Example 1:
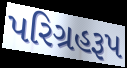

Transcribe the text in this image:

પરિગ્રહરૂપ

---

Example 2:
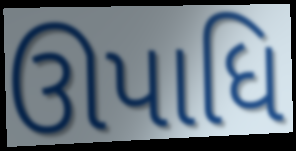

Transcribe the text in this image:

ઊપાધિ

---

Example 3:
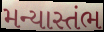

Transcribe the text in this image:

મન્યાસ્તંભ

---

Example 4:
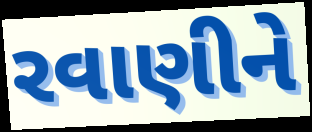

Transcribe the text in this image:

રવાણીને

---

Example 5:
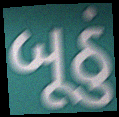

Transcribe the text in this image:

બૂઠું